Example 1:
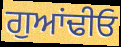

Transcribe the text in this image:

ਗੁਆਂਢੀਓ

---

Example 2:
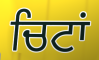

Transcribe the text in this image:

ਚਿਟਾਂ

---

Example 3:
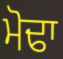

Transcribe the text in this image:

ਮੋਢਾ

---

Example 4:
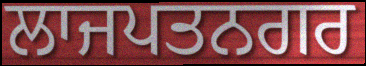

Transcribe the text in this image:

ਲਾਜਪਤਨਗਰ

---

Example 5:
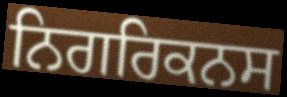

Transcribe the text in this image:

ਨਿਗਰਿਕਨਸ